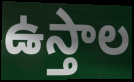
ఉస్తాల